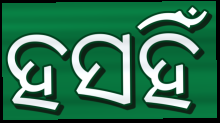
ହସହିଁ